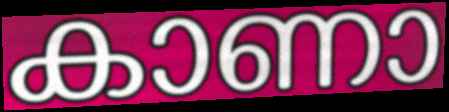
കാണാ